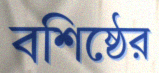
বশিষ্ঠের